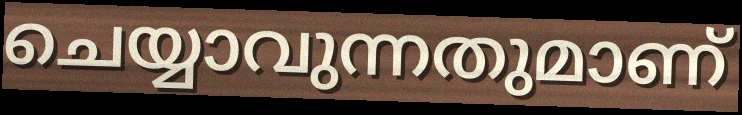
ചെയ്യാവുന്നതുമാണ്